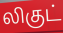
லிகுட்